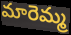
మారెమ్మ